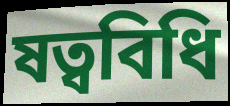
ষত্ববিধি